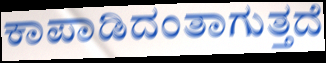
ಕಾಪಾಡಿದಂತಾಗುತ್ತದೆ